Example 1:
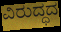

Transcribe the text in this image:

ವಿರುದ್ಧದ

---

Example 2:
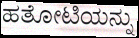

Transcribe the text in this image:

ಹತೋಟಿಯನ್ನು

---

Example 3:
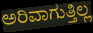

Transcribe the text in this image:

ಅರಿವಾಗುತ್ತಿಲ್ಲ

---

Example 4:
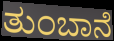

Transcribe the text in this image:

ತುಂಬಾನೆ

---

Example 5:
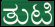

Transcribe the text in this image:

ತುಟಿ